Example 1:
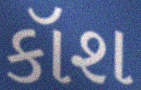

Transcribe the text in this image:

કૉશ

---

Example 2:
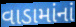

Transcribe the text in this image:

વાડામાંનાં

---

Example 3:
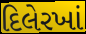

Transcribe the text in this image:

દિલેરખાં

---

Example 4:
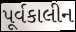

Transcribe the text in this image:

પૂર્વકાલીન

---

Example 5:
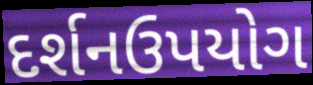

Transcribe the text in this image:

દર્શનઉપયોગ